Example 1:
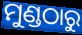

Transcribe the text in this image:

ମୁଣ୍ଡଠାରୁ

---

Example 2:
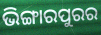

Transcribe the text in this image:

ଭିଙ୍ଗାରପୁରର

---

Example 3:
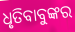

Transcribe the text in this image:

ଧୃତିବାବୁଙ୍କର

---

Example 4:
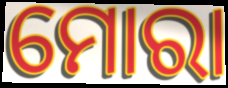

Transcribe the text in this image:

ମୋରା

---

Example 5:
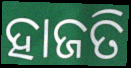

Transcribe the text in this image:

ହାଜତି